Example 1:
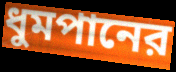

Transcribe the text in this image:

ধুমপানের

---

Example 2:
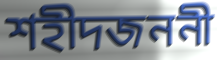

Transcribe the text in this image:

শহীদজননী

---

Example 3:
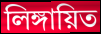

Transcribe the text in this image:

লিঙ্গায়িত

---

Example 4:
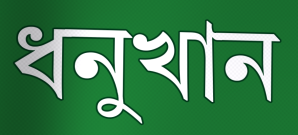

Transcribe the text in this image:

ধনুখান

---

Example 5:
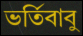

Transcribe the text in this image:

ভর্তিবাবু